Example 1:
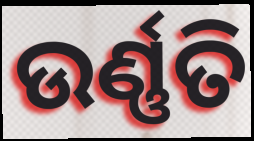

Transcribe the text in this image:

ଉର୍ଣ୍ଣତି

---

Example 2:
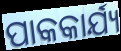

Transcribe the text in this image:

ପାକକାର୍ଯ୍ୟ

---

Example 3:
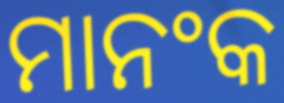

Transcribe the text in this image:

ମାନଂକ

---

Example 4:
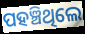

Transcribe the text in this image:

ପହଞ୍ଚିଥିଲେ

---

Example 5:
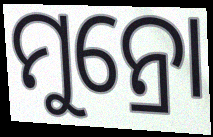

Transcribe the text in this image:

ମୁନ୍ରୋ